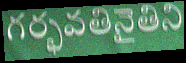
గర్భవతినైతిని